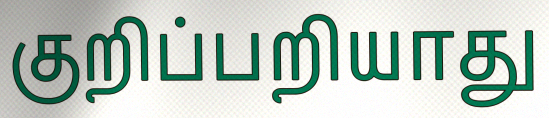
குறிப்பறியாது